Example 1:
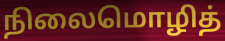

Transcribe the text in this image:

நிலைமொழித்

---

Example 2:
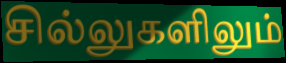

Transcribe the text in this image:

சில்லுகளிலும்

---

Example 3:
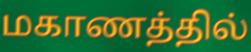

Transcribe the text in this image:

மகாணத்தில்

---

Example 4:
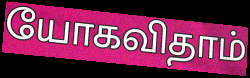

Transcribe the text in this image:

யோகவிதாம்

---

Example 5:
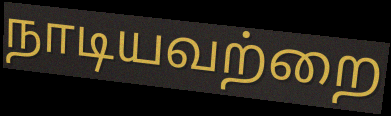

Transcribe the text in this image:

நாடியவற்றை